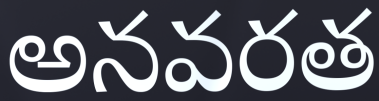
అనవరత